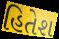
હિતેશ